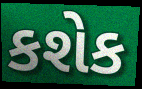
કશેક